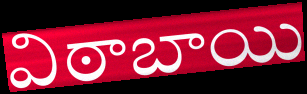
విఠాబాయి